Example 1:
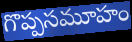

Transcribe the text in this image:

గొప్పసమూహం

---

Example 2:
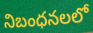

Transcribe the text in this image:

నిబంధనలలో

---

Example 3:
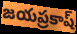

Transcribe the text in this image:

జయప్రకాష్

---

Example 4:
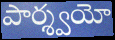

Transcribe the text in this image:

పార్శ్వయో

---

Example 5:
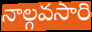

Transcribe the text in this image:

నాల్గవసారి